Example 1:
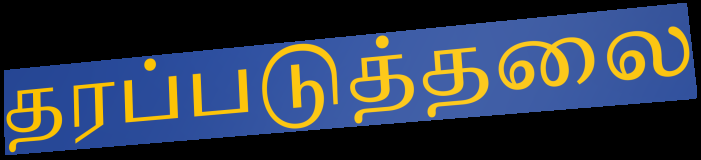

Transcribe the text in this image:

தரப்படுத்தலை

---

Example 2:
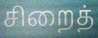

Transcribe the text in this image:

சிறைத்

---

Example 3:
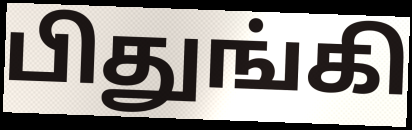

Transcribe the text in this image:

பிதுங்கி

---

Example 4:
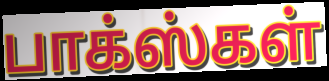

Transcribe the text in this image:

பாக்ஸ்கள்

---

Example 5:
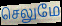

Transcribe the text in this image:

செலுமே